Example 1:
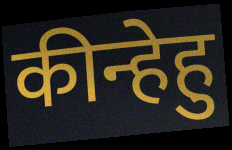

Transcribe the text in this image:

कीन्हेहु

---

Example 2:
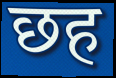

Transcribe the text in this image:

छह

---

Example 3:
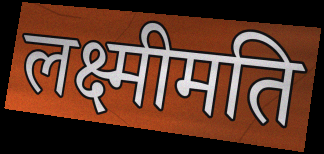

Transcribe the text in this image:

लक्ष्मीमति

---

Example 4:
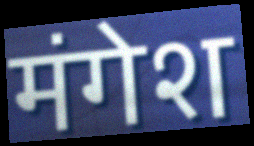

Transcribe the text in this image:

मंगेश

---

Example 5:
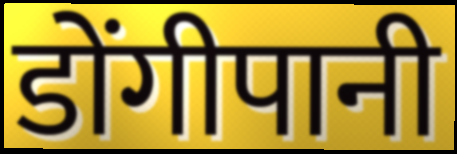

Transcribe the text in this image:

डोंगीपानी